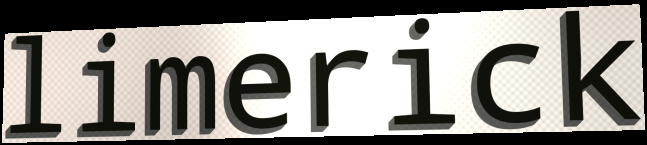
limerick